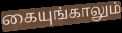
கையுங்காலும்